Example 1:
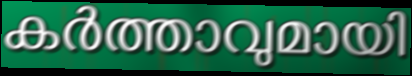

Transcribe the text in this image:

കർത്താവുമായി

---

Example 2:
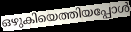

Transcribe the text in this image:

ഒഴുകിയെത്തിയപ്പോൾ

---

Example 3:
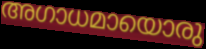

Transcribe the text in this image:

അഗാധമായൊരു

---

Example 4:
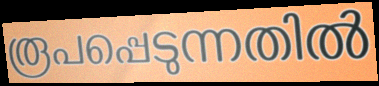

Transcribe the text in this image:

രൂപപ്പെടുന്നതിൽ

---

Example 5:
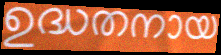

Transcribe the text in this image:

ഉദ്ധതനായ